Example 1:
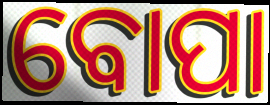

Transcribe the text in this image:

ବୋପା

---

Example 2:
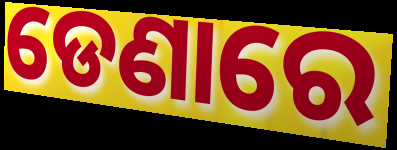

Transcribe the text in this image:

ଡେଣାରେ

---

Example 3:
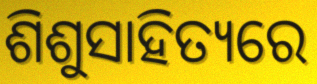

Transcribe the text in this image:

ଶିଶୁସାହିତ୍ୟରେ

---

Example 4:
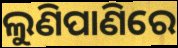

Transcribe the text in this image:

ଲୁଣିପାଣିରେ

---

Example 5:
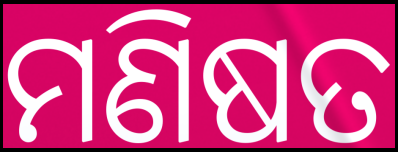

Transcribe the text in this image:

ମଣିଷତ